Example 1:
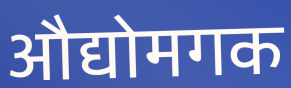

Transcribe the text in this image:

औद्योमगक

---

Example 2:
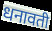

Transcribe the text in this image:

धनावती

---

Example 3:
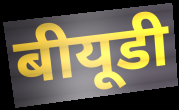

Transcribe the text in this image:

बीयूडी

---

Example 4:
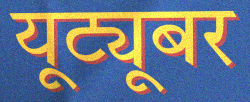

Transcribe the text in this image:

यूट्यूबर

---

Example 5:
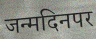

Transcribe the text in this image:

जन्मदिनपर